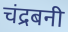
चंद्रबनी